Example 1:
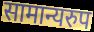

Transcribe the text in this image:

सामान्यरुप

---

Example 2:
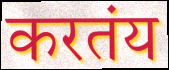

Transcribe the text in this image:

करतंय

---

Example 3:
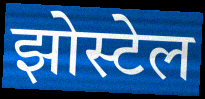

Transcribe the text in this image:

झोस्टेल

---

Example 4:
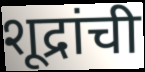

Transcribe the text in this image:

शूद्रांची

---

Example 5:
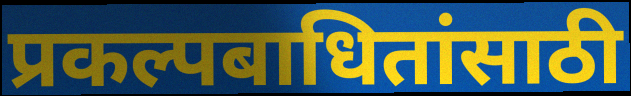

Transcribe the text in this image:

प्रकल्पबाधितांसाठी